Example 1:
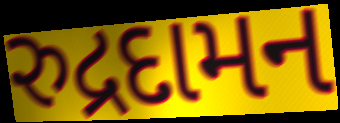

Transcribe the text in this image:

રુદ્રદામન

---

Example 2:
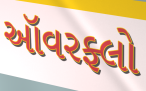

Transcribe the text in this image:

ઑવરફ્લો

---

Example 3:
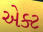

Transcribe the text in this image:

એક્ટ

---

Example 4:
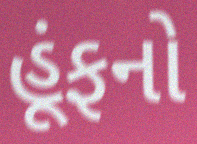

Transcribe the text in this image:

હૂંફનો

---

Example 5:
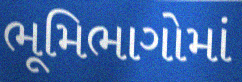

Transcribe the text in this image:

ભૂમિભાગોમાં